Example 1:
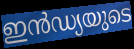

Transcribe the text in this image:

ഇൻഡ്യയുടെ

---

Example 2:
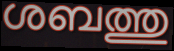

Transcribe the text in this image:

ശബത്തു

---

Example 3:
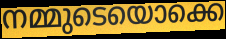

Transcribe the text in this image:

നമ്മുടെയൊക്കെ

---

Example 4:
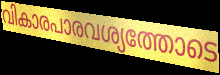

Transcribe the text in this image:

വികാരപാരവശ്യത്തോടെ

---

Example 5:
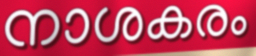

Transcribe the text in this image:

നാശകരം